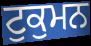
ਟੁਕੁਮਨ